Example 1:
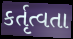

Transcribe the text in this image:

કર્તૃત્વતા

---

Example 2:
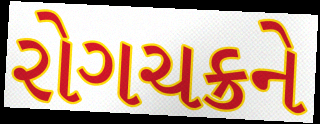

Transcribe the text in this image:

રોગચક્રને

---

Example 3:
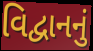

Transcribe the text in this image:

વિદ્વાનનું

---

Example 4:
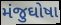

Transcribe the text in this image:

મંજુઘોષા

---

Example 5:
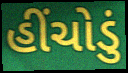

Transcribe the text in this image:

હીંચોડું